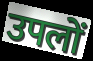
उपलों